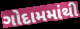
ગોદામમાંથી